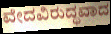
ವೇದವಿರುದ್ಧವಾದ